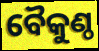
ବୈକୁଣ୍ଠ